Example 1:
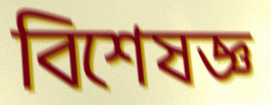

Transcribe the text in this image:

বিশেষজ্ঞ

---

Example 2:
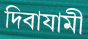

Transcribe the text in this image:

দিবাযামী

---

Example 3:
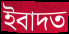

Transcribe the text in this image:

ইবাদত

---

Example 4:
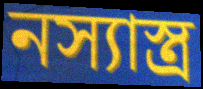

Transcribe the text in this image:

নস্যাস্ত্র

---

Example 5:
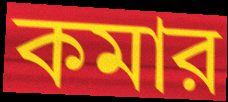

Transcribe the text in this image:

কমার